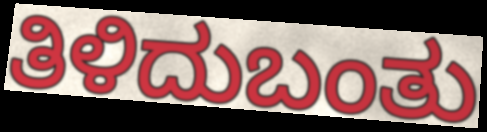
ತಿಳಿದುಬಂತು